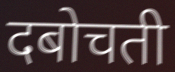
दबोचती